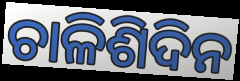
ଚାଳିଶିଦିନ